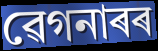
ৱেগনাৰৰ